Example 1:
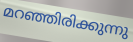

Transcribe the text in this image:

മറഞ്ഞിരിക്കുന്നു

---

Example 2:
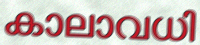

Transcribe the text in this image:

കാലാവധി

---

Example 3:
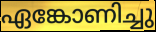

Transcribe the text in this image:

ഏങ്കോണിച്ചു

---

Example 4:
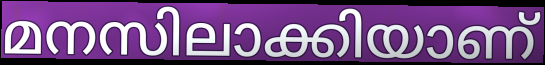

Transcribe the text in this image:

മനസിലാക്കിയാണ്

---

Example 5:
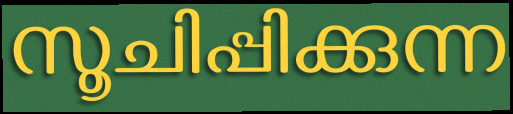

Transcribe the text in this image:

സൂചിപ്പിക്കുന്ന